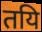
तयि